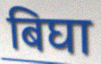
बिघा